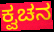
ಕ್ವಚನ